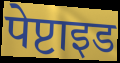
पेप्टाइड